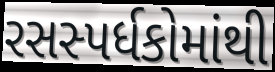
રસસ્પર્ધકોમાંથી